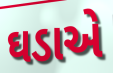
ઘડાએ